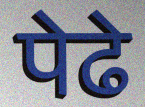
पेढे